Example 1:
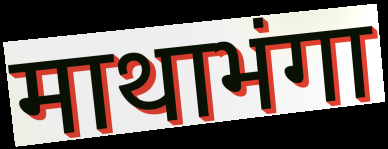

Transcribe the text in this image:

माथाभंगा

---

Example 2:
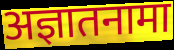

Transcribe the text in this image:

अज्ञातनामा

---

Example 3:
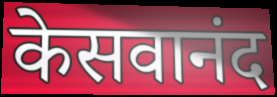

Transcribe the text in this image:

केसवानंद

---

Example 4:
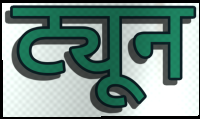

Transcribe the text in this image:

ट्यून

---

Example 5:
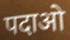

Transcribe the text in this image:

पदाओ